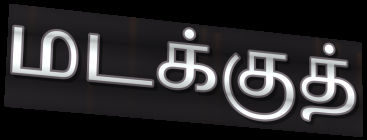
மடக்குத்